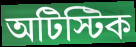
অটিস্টিক